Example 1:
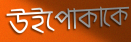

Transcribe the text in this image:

উইপোকাকে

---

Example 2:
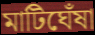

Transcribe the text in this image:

মাটিঘেঁষা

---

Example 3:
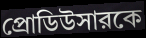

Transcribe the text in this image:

প্রোডিউসারকে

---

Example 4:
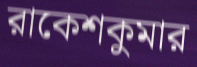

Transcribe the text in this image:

রাকেশকুমার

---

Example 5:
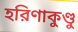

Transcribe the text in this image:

হরিণাকুণ্ডু